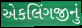
એકલિંગજીનું